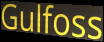
Gulfoss